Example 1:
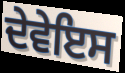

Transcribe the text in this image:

ਦੇਵੇਇਸ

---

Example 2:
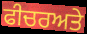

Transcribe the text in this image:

ਫੀਚਰਅਤੇ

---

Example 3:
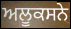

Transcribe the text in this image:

ਅਲੂਕਸਨੇ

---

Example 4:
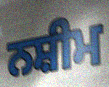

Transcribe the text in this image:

ਨਸ਼ੀਮ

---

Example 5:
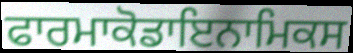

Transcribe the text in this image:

ਫਾਰਮਾਕੋਡਾਇਨਾਮਿਕਸ